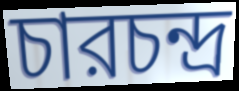
চারচন্দ্র